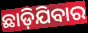
ଛାଡ଼ିଯିବାର